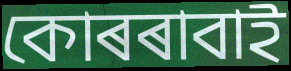
কোৰৰাবাই